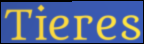
Tieres